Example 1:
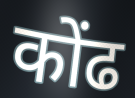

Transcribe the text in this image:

कोंढ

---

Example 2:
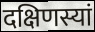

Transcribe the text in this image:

दक्षिणस्यां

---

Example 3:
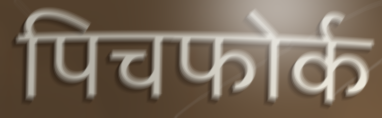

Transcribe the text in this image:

पिचफोर्क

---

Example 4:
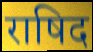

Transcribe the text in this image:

राषिद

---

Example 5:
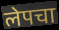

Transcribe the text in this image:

लेपचा